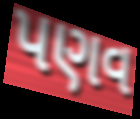
પણવ